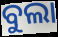
ବୁଲା